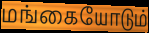
மங்கையோடும்